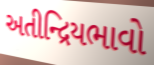
અતીન્દ્રિયભાવો